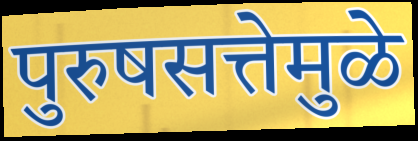
पुरुषसत्तेमुळे